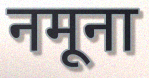
नमूना